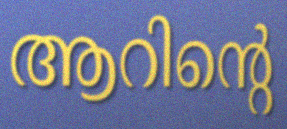
ആറിന്റെ